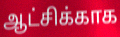
ஆட்சிக்காக